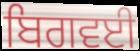
ਬਿਗਵਈ